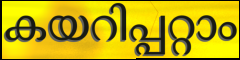
കയറിപ്പറ്റാം